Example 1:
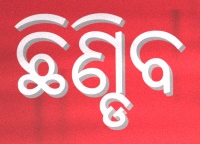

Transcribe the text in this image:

ଛିଣ୍ଡିବ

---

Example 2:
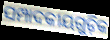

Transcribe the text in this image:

ସମ୍ପାଦକୀୟଗୁଡ଼ିକ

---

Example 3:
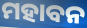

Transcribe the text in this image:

ମହାବନ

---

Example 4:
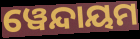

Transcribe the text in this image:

ୱେନ୍ଦାୟମ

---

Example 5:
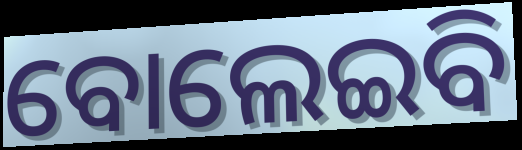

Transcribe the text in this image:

ବୋଲେଇବି